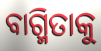
ବାଗ୍ମିତାକୁ